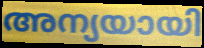
അന്യയായി